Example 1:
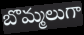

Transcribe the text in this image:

బొమ్మలుగా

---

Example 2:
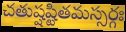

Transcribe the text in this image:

చతుష్షష్టితమస్సర్గః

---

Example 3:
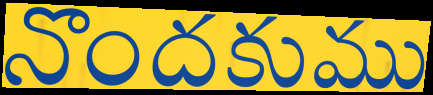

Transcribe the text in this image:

నొందకుము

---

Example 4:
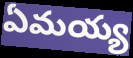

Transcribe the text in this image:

ఏమయ్య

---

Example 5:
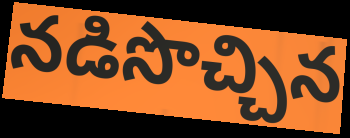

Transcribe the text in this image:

నడిసొచ్చిన